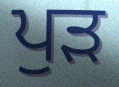
ਪੁੜ